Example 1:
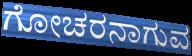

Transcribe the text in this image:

ಗೋಚರನಾಗುವ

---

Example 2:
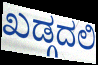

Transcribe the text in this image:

ಖಡ್ಗದಲಿ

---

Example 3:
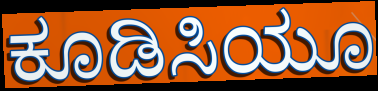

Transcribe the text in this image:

ಕೂಡಿಸಿಯೂ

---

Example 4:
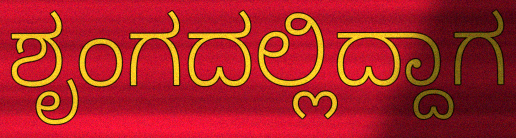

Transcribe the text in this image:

ಶೃಂಗದಲ್ಲಿದ್ದಾಗ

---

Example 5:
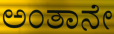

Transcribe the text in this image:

ಅಂತಾನೇ